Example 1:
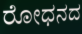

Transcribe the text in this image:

ರೋಧನದ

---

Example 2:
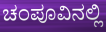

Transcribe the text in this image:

ಚಂಪೂವಿನಲ್ಲಿ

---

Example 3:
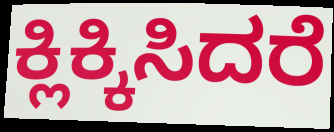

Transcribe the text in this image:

ಕ್ಲಿಕ್ಕಿಸಿದರೆ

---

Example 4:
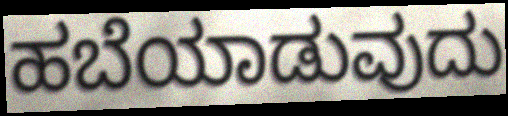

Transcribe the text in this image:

ಹಬೆಯಾಡುವುದು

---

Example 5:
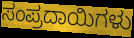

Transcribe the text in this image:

ಸಂಪ್ರದಾಯಿಗಳು